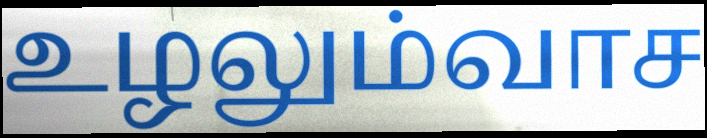
உழலும்வாச